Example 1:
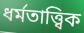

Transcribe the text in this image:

ধর্মতাত্ত্বিক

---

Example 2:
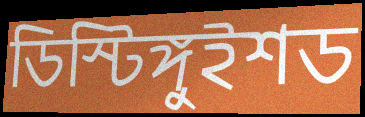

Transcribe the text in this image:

ডিস্টিঙ্গুইশড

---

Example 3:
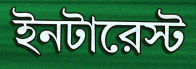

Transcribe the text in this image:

ইনটারেস্ট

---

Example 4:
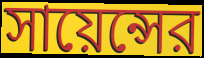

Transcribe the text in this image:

সায়েন্সের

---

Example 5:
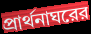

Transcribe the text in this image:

প্রার্থনাঘরের